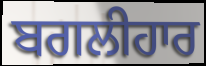
ਬਗਲੀਹਾਰ